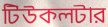
টিউকলটার